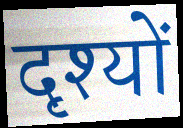
दृश्यों